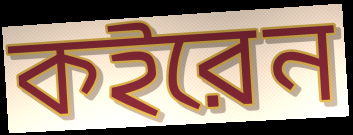
কইরেন